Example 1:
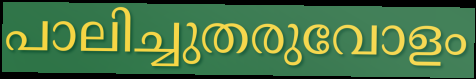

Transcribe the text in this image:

പാലിച്ചുതരുവോളം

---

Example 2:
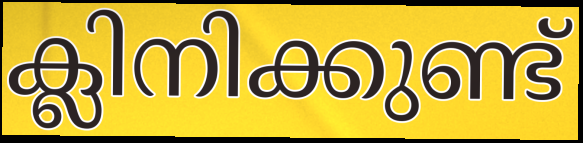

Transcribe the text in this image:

ക്ലിനിക്കുണ്ട്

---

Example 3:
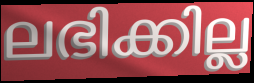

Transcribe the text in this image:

ലഭിക്കില്ല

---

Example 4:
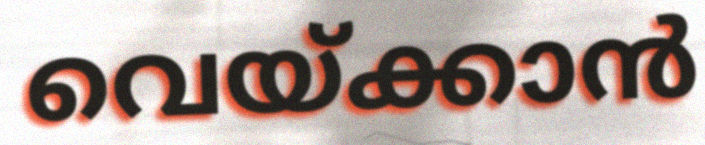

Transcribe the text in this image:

വെയ്ക്കാൻ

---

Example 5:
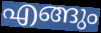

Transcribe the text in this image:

എങ്ങും